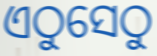
ଏଠୁସେଠୁ